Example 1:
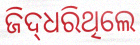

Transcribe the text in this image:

ଜିଦ୍‌ଧରିଥିଲେ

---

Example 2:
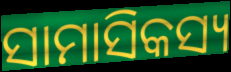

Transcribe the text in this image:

ସାମାସିକସ୍ୟ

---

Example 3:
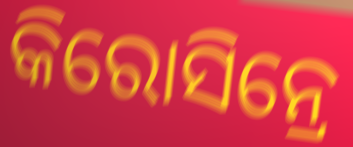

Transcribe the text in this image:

କିରୋସିନ୍ରେ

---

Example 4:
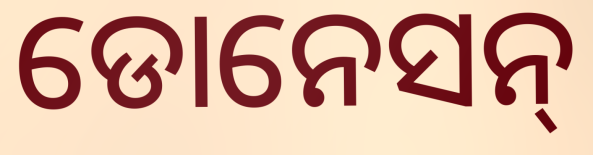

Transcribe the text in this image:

ଡୋନେସନ୍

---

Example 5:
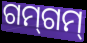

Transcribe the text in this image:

ଗମ୍‍ଗମ୍